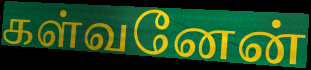
கள்வனேன்